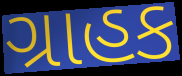
ગ્રાહક